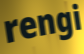
rengi